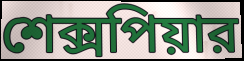
শেক্সপিয়ার